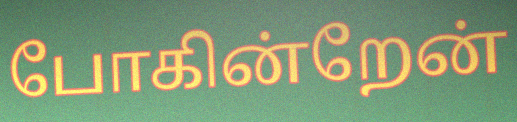
போகின்றேன்